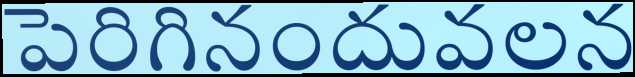
పెరిగినందువలన